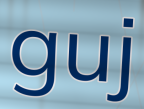
guj